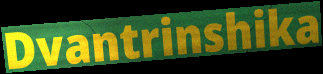
Dvantrinshika